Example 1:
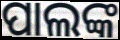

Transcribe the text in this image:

ପାଲଙ୍କ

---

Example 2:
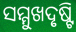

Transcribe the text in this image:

ସମ୍ମୁଖଦୃଷ୍ଟି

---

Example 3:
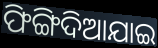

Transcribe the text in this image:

ଫିଙ୍ଗିଦିଆଯାଇ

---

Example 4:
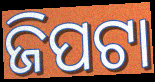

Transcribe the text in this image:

ଜିପଟା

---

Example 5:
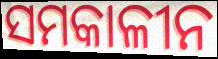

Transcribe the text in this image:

ସମକାଳୀନ